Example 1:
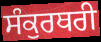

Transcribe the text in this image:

ਸੰਕੁਰਥਰੀ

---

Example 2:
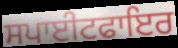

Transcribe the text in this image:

ਸਪਾਈਟਫਾਇਰ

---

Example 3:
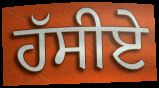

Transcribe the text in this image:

ਹੱਸੀਏ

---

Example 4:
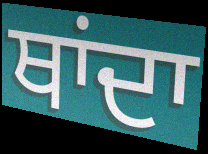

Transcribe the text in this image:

ਥਾਂਦਾ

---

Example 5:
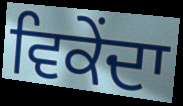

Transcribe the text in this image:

ਵਿਕੇਂਦਾ